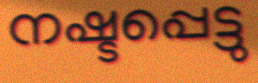
നഷ്ടപ്പെട്ടു